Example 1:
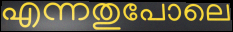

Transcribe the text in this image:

എന്നതുപോലെ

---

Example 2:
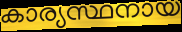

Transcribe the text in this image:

കാര്യസ്ഥനായ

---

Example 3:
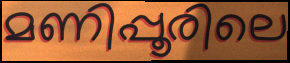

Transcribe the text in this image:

മണിപ്പൂരിലെ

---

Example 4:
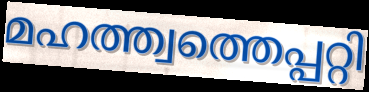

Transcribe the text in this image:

മഹത്ത്വത്തെപ്പറ്റി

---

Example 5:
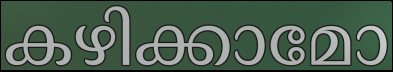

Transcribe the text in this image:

കഴിക്കാമോ